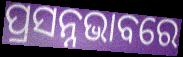
ପ୍ରସନ୍ନଭାବରେ